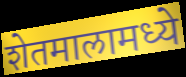
शेतमालामध्ये